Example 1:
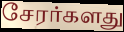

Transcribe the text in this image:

சேரர்களது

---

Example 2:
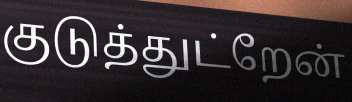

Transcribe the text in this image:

குடுத்துட்றேன்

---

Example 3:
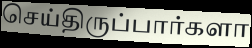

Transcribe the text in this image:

செய்திருப்பார்களா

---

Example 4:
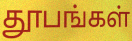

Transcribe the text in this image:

தூபங்கள்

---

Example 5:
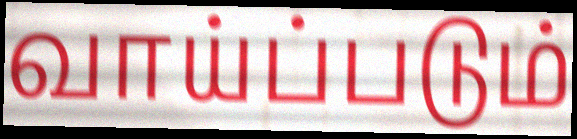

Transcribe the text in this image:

வாய்ப்படும்